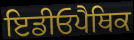
ਇਡੀਓਪੈਥਿਕ